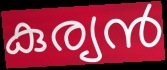
കുര്യൻ